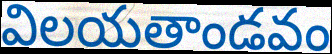
విలయతాండవం